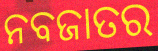
ନବଜାତର